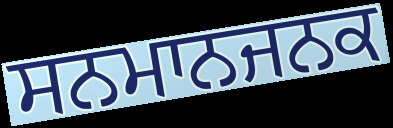
ਸਨਮਾਨਜਨਕ